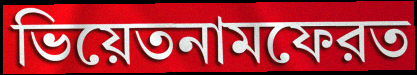
ভিয়েতনামফেরত